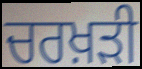
ਚਰਖ਼ੜੀ